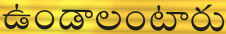
ఉండాలంటారు